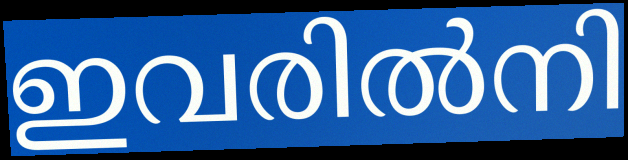
ഇവരിൽനി